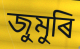
জুমুৰি